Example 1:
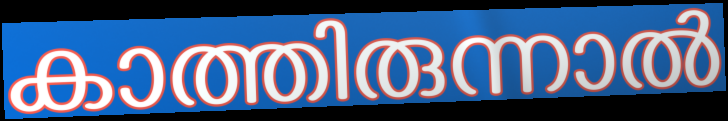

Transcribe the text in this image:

കാത്തിരുന്നാൽ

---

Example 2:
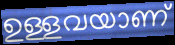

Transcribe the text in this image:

ഉള്ളവയാണ്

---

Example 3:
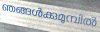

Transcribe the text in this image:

ഞങ്ങൾക്കുമുമ്പിൽ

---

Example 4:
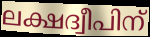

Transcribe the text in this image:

ലക്ഷദ്വീപിന്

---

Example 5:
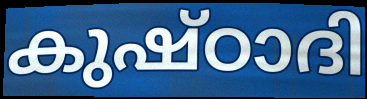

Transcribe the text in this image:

കുഷ്ഠാദി